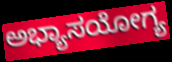
ಅಭ್ಯಾಸಯೋಗ್ಯ